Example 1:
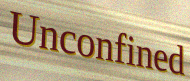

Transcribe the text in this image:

Unconfined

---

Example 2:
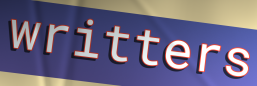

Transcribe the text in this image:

writters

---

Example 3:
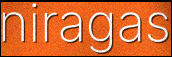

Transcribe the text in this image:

niragas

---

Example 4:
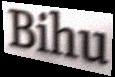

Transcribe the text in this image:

Bihu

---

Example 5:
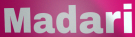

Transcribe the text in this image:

Madari